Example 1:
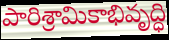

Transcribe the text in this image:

పారిశ్రామికాభివృద్ధి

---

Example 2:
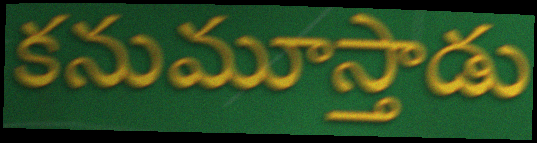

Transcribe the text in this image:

కనుమూస్తాడు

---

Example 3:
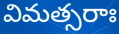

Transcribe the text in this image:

విమత్సరాః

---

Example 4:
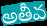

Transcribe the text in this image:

అతీవ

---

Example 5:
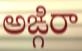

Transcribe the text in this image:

అఙ్గిరా